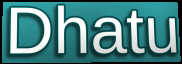
Dhatu